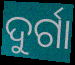
ଦୁର୍ଗା